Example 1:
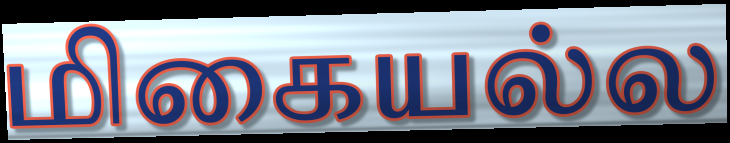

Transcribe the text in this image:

மிகையல்ல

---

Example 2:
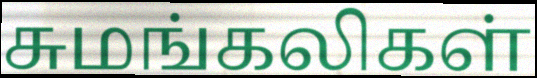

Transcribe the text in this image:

சுமங்கலிகள்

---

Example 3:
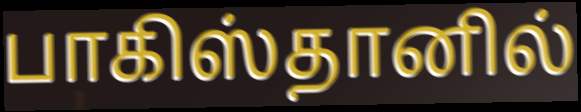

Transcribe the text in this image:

பாகிஸ்தானில்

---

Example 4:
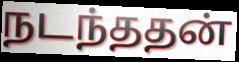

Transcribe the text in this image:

நடந்ததன்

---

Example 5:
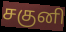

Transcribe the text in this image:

சகுனி